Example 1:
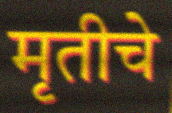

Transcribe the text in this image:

मृतीचे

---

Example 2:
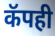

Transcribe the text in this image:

कॅपही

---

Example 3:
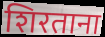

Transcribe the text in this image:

शिरताना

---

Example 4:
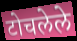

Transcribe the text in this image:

टोचलेले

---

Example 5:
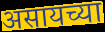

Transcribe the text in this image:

असायच्या